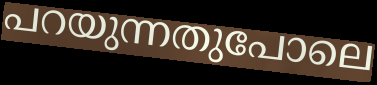
പറയുന്നതുപോലെ